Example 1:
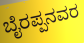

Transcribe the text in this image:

ಬೈರಪ್ಪನವರ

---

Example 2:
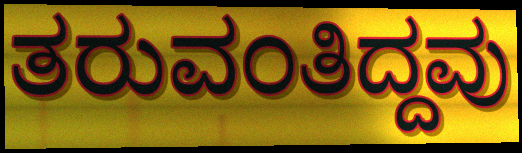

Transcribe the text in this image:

ತರುವಂತಿದ್ದವು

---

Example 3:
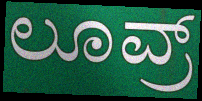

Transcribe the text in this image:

ಲೂವ್ರ್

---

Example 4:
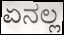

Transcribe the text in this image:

ಏನಲ್ಲ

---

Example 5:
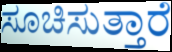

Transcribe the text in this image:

ಸೂಚಿಸುತ್ತಾರೆ